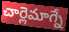
చార్లెమాగ్నే